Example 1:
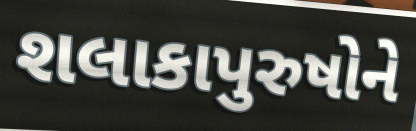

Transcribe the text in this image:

શલાકાપુરુષોને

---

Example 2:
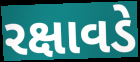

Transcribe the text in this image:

રક્ષાવડે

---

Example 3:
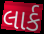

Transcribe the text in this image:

લાર્ક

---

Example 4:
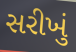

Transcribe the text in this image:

સરીખું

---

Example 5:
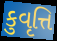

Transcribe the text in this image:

કુવૃત્તિ